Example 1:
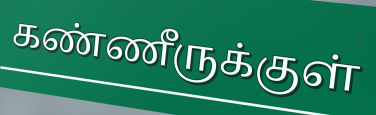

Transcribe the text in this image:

கண்ணீருக்குள்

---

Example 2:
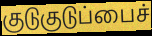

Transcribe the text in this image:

குடுகுடுப்பைச்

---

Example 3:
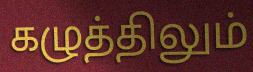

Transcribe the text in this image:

கழுத்திலும்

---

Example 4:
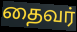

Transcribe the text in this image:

தைவர்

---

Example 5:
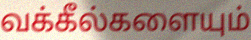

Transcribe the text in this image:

வக்கீல்களையும்